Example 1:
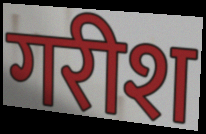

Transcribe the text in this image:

गरीश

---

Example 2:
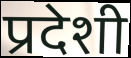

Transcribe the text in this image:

प्रदेशी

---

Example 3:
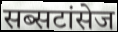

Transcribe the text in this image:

सब्सटांसेज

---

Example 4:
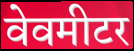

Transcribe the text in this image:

वेवमीटर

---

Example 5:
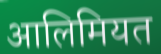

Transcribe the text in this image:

आलिमियत